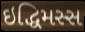
ઇદ્ધિમસ્સ